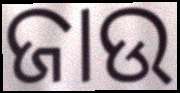
ଜାଉ